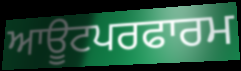
ਆਊਟਪਰਫਾਰਮ